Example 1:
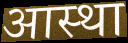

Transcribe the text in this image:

आस्था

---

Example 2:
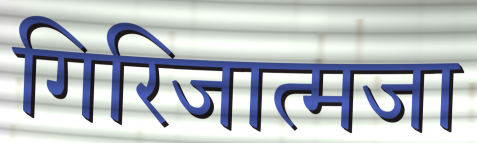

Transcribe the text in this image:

गिरिजात्मजा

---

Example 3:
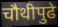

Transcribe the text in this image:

चौथीपुढे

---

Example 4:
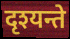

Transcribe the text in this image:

दृश्यन्ते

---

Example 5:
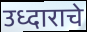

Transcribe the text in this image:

उध्दाराचे